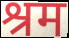
श्रम